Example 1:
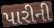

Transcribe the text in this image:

પારીની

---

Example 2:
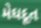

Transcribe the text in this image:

મેઘદૂત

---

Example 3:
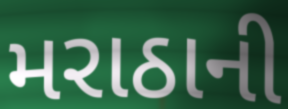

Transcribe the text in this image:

મરાઠાની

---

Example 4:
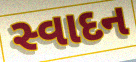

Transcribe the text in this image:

સ્વાદન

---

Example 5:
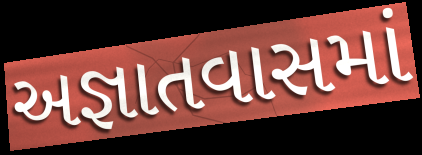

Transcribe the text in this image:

અજ્ઞાતવાસમાં